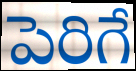
పెరిగే